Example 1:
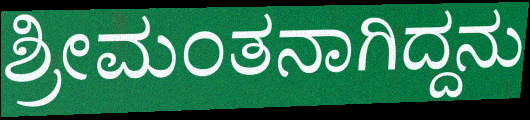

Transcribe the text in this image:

ಶ್ರೀಮಂತನಾಗಿದ್ದನು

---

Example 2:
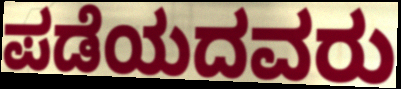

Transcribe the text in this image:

ಪಡೆಯದವರು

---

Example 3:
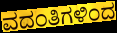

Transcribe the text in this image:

ವದಂತಿಗಳಿಂದ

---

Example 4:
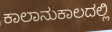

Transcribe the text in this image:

ಕಾಲಾನುಕಾಲದಲ್ಲಿ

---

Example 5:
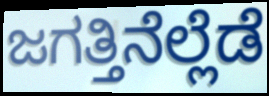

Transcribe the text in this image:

ಜಗತ್ತಿನೆಲ್ಲೆಡೆ